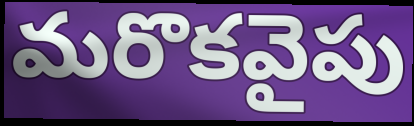
మరొకవైపు